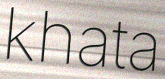
khata